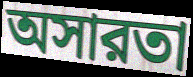
অসারতা